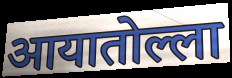
आयातोल्ला